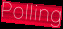
Polling